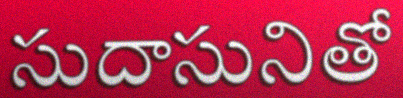
సుదాసునితో